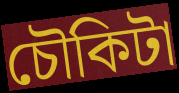
চৌকিটা